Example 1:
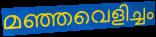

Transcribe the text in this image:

മഞ്ഞവെളിച്ചം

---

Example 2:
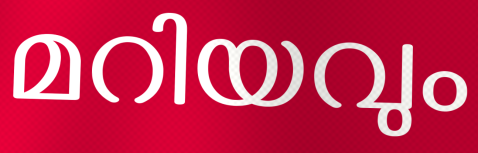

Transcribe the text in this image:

മറിയവും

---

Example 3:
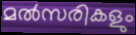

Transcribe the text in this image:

മൽസരികളും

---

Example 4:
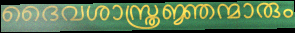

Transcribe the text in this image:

ദൈവശാസ്ത്രജ്ഞന്മാരും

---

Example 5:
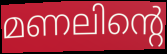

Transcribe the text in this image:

മണലിന്റെ